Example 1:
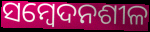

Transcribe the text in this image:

ସମ୍ବେଦନଶୀଳ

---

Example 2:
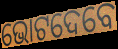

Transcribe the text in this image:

ଭୋଟଦେବେ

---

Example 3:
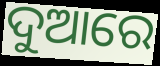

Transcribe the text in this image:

ଦୁଆରେ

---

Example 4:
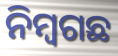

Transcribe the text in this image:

ନିମ୍ୱଗଛ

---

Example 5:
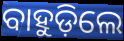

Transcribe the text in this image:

ବାହୁଡ଼ିଲେ